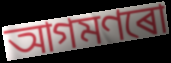
আগমণৰো